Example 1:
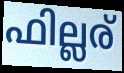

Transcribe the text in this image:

ഫില്ലര്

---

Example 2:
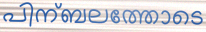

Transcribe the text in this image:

പിന്ബലത്തോടെ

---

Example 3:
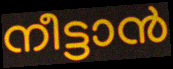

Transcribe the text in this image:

നീട്ടാൻ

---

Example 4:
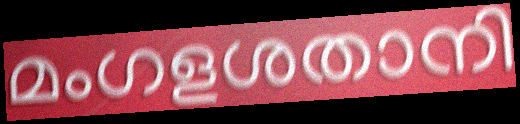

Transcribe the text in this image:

മംഗളശതാനി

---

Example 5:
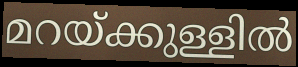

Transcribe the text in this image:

മറയ്ക്കുള്ളിൽ